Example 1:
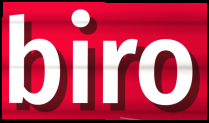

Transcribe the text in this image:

biro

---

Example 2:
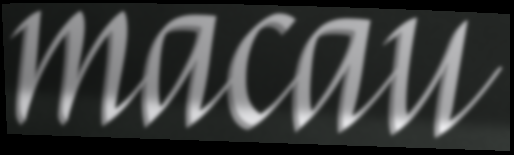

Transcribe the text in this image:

macau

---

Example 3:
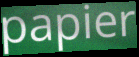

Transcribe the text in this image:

papier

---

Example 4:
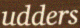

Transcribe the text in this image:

udders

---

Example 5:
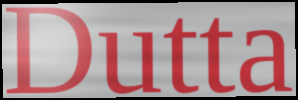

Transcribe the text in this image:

Dutta